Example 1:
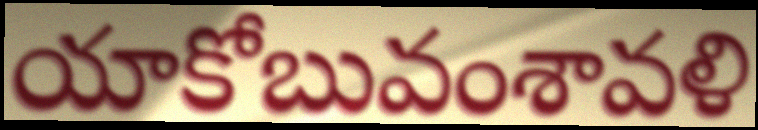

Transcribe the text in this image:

యాకోబువంశావళి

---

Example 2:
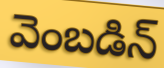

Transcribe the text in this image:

వెంబడిన్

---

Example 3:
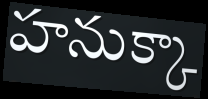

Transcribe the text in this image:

హనుక్కా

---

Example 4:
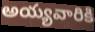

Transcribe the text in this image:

అయ్యవారికి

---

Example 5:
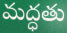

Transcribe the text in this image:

మద్ధతు